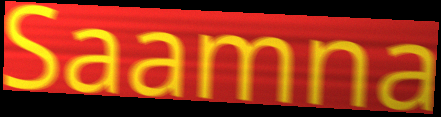
Saamna